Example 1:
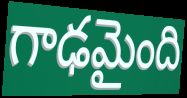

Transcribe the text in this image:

గాఢమైంది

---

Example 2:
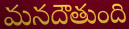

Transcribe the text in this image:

మనదౌతుంది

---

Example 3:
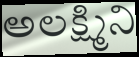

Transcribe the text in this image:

అలక్ష్మిని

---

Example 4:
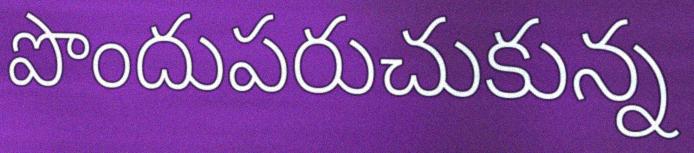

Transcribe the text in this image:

పొందుపరుచుకున్న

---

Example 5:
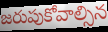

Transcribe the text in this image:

జరుపుకోవాల్సిన